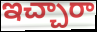
ఇచ్చారా